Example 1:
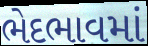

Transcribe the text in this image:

ભેદભાવમાં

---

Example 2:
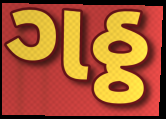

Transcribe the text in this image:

ગઠ્ઠ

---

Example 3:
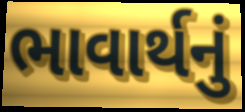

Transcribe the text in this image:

ભાવાર્થનું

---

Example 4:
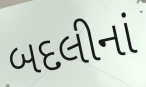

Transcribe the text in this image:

બદલીનાં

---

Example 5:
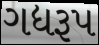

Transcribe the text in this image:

ગદ્યરૂપ